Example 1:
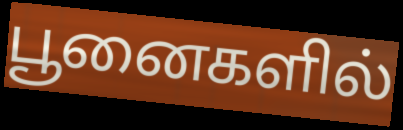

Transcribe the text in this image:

பூனைகளில்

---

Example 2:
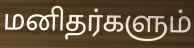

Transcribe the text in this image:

மனிதர்களும்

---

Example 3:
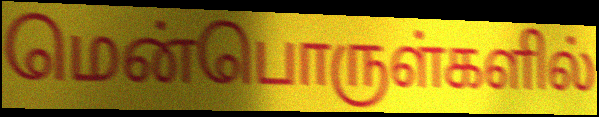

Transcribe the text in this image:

மென்பொருள்களில்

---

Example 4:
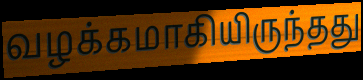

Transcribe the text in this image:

வழக்கமாகியிருந்தது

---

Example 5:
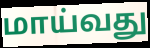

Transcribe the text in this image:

மாய்வது